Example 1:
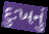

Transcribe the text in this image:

દુઃખનું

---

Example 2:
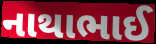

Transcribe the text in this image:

નાથાભાઈ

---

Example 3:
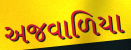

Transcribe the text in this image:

અજવાળિયા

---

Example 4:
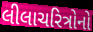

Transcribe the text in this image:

લીલાચરિત્રોનો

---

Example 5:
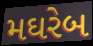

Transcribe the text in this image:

મઘરેબ